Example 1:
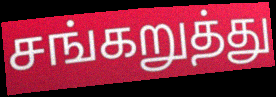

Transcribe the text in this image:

சங்கறுத்து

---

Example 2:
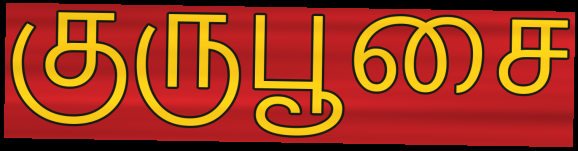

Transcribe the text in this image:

குருபூசை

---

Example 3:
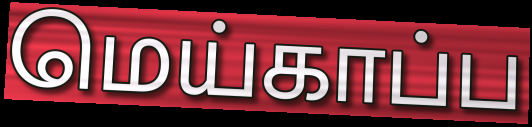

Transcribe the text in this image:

மெய்காப்ப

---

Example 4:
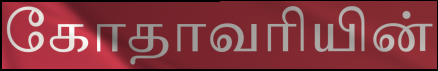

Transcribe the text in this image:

கோதாவரியின்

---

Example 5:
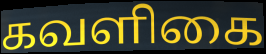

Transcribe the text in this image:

கவளிகை